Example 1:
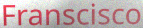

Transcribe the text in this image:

Franscisco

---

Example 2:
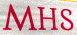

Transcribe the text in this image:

MHS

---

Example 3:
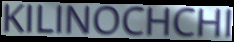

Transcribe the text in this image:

KILINOCHCHI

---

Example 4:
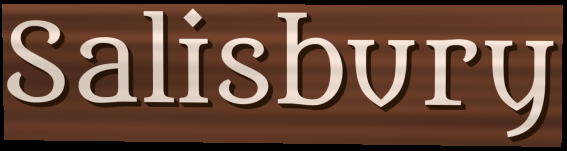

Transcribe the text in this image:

Salisbury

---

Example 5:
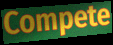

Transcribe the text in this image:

Compete